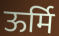
ऊर्मि